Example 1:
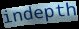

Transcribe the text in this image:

indepth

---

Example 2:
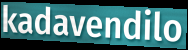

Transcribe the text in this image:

kadavendilo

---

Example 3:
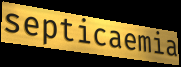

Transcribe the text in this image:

septicaemia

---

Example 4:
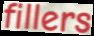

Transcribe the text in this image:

fillers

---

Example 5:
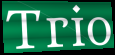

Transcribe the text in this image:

Trio